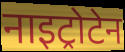
नाइट्रोटेन